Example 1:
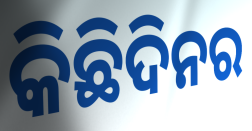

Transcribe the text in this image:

କିଛିଦିନର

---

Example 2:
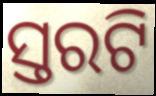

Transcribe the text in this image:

ସ୍ତରଟି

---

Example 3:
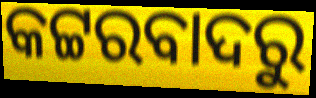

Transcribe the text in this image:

କଟ୍ଟରବାଦରୁ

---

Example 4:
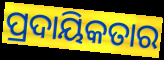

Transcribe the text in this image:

ପ୍ରଦାୟିକତାର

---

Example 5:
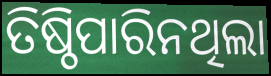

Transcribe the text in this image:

ତିଷ୍ଠିପାରିନଥିଲା